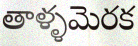
తాళ్ళమెరక